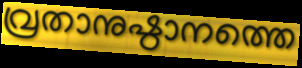
വ്രതാനുഷ്ഠാനത്തെ